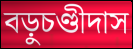
বড়ুচণ্ডীদাস